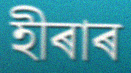
হীৰাৰ